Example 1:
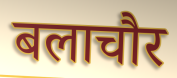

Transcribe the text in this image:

बलाचौर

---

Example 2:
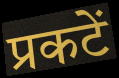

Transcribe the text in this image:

प्रकटें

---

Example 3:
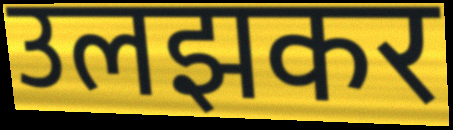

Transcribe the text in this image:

उलझकर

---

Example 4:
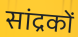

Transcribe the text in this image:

सांद्रकों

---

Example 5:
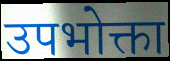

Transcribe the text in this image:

उपभोक्ता